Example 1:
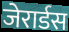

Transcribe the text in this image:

जेरार्डस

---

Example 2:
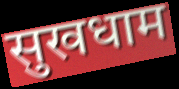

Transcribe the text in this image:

सुखधाम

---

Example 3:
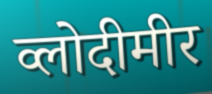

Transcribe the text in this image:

व्लोदीमीर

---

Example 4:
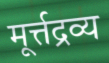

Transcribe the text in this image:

मूर्त्तद्रव्य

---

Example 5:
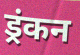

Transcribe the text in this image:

ड्रंकन